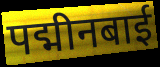
पद्मीनबाई